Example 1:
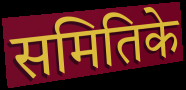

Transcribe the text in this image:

समितिके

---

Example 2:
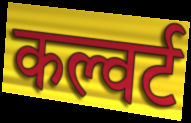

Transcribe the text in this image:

कल्वर्ट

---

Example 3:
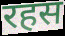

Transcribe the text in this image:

रहस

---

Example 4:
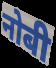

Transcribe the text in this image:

नोबी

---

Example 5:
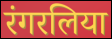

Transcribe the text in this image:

रंगरलिया